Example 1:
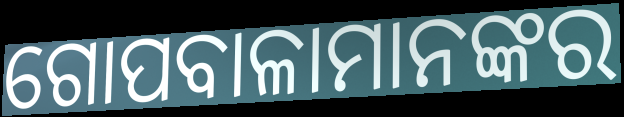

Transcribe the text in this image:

ଗୋପବାଳାମାନଙ୍କର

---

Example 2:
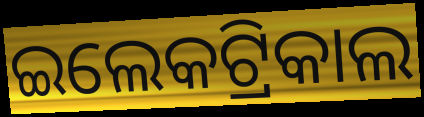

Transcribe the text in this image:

ଇଲେକଟ୍ରିକାଲ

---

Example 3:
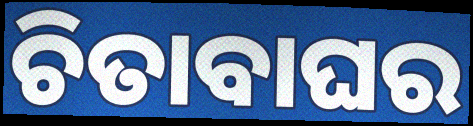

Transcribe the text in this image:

ଚିତାବାଘର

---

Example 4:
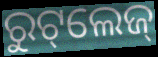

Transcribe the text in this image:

ରୁଟ୍‌ଲେଜ୍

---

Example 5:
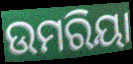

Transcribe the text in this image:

ଉମରିୟା